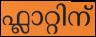
ഫ്ലാറ്റിന്